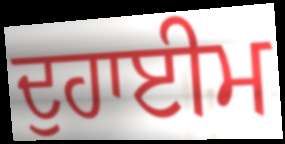
ਦੁਹਾਈਮ